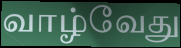
வாழ்வேது